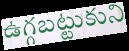
ఉగ్గబట్టుకుని